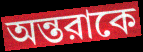
অন্তরাকে